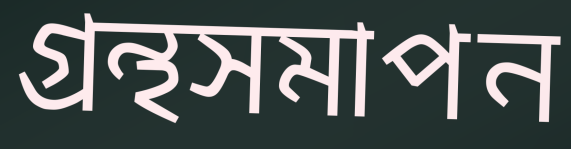
গ্রন্থসমাপন